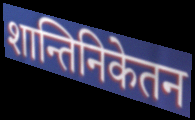
शान्तिनिकेतन